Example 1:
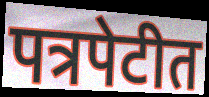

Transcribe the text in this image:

पत्रपेटीत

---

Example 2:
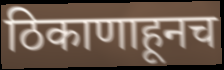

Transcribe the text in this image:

ठिकाणाहूनच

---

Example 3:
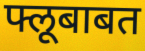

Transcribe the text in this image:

फ्लूबाबत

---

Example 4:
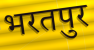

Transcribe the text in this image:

भरतपुर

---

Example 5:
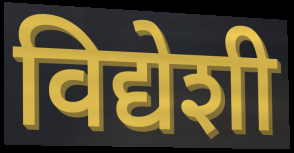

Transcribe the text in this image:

विद्येशी